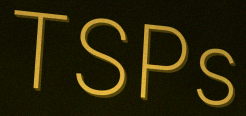
TSPs